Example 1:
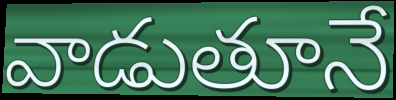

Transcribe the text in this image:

వాడుతూనే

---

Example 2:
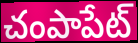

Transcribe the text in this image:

చంపాపేట్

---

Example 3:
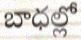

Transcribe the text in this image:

బాధల్లో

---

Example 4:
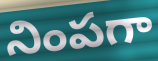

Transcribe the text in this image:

నింపగా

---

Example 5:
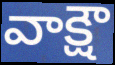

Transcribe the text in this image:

వాక్షౌ